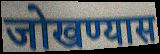
जोखण्यास